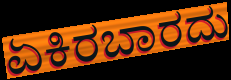
ಏಕಿರಬಾರದು